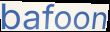
bafoon